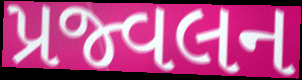
પ્રજ્વલન